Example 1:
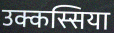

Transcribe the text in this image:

उक्कस्सिया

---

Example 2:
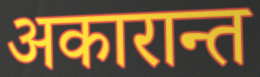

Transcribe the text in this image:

अकारान्त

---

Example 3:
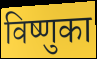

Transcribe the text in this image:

विष्णुका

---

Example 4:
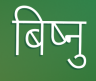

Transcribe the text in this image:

बिष्नु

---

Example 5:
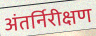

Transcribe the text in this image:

अंतर्निरीक्षण